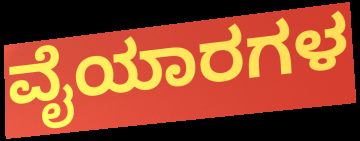
ವೈಯಾರಗಳ